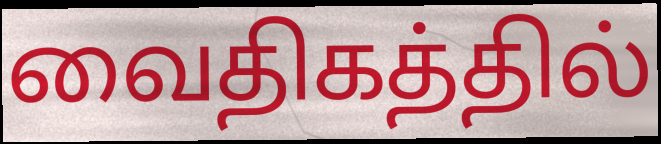
வைதிகத்தில்